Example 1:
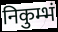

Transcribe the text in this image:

निकुम्भं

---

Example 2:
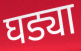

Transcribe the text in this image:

घड्या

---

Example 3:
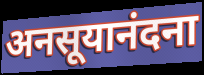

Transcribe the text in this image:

अनसूयानंदना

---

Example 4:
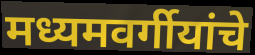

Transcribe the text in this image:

मध्यमवर्गीयांचे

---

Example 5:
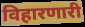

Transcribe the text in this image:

विहारणारी